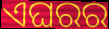
ଏଘରର